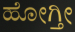
ಹೋಗ್ತೀ